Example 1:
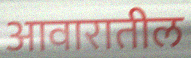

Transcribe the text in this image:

आवारातील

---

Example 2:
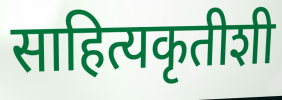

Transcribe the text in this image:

साहित्यकृतीशी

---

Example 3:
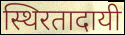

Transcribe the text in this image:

स्थिरतादायी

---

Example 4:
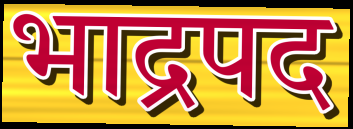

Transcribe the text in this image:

भाद्रपद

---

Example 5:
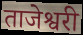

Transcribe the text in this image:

ताजेश्वरी